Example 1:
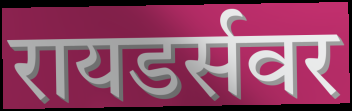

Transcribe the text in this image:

रायडर्सवर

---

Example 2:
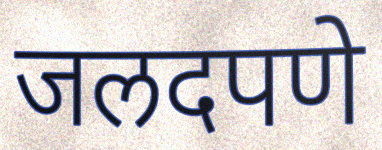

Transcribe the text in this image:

जलदपणे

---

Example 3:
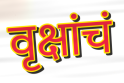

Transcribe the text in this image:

वृक्षांचं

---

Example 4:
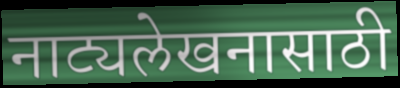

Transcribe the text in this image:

नाट्यलेखनासाठी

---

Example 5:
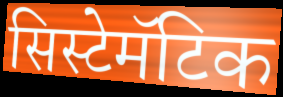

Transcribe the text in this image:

सिस्टेमॅटिक